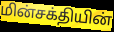
மின்சக்தியின்